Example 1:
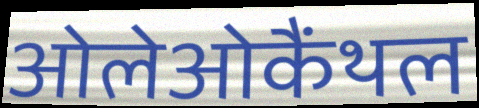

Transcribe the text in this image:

ओलेओकैंथल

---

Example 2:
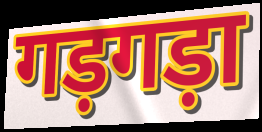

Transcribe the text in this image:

गड़गड़ा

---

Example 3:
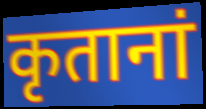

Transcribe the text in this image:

कृतानां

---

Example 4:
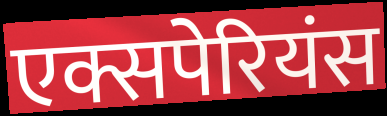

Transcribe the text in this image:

एक्सपेरियंस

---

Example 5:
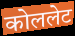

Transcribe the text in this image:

कोललेट